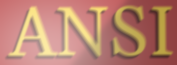
ANSI